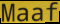
Maaf